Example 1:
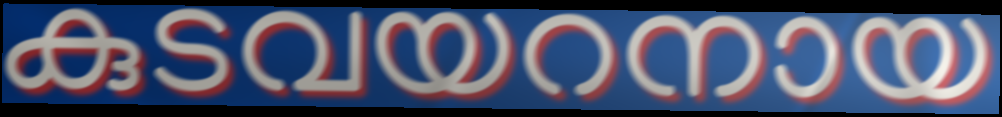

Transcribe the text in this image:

കുടവയറനായ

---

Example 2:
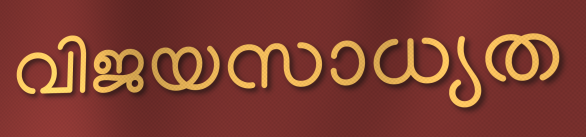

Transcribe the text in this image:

വിജയസാധ്യത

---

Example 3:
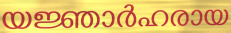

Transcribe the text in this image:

യജ്ഞാർഹരായ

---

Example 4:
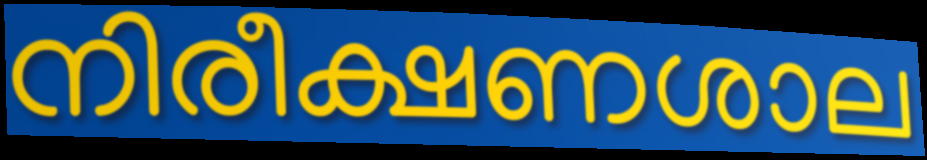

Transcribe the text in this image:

നിരീക്ഷണശാല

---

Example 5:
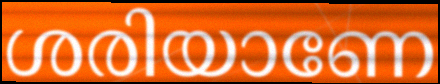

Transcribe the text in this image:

ശരിയാണേ